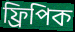
ফ্রিপিক